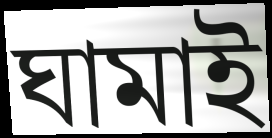
ঘামাই